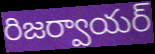
రిజర్వాయర్